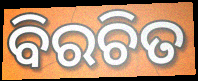
ବିରଚିତ